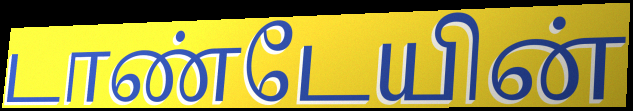
டாண்டேயின்